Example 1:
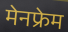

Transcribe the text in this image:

मेनफ्रेम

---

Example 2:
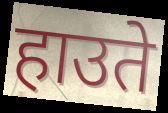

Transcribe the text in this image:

हाउते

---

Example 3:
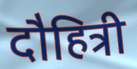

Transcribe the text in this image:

दौहित्री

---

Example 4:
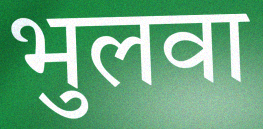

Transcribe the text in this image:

भुलवा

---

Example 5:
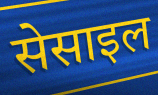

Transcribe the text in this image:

सेसाइल